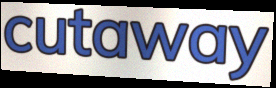
cutaway